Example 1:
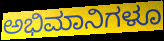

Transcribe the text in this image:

ಅಭಿಮಾನಿಗಳೂ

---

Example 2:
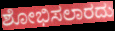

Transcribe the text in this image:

ಶೋಭಿಸಲಾರದು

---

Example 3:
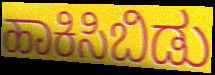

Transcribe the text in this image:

ಹಾಕಿಸಿಬಿಡು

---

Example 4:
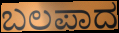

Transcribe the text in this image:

ಬಲಪಾದ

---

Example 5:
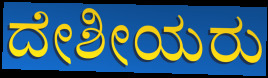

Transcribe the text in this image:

ದೇಶೀಯರು